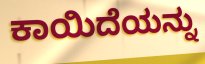
ಕಾಯಿದೆಯನ್ನು